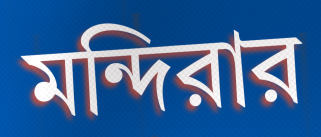
মন্দিরার